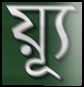
য়্যূ